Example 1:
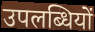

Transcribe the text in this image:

उपलब्धियों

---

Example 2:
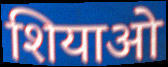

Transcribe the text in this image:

शियाओ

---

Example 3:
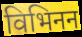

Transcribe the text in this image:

विभिनन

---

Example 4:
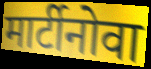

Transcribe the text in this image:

मार्टीनोवा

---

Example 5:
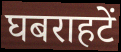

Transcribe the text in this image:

घबराहटें